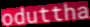
oduttha